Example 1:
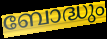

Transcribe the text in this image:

ബോദ്ധും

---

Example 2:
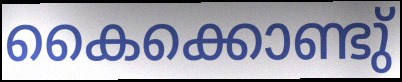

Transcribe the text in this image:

കൈക്കൊണ്ടു്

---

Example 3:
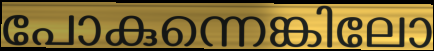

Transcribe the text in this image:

പോകുന്നെങ്കിലോ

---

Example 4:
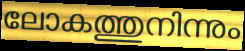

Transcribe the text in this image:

ലോകത്തുനിന്നും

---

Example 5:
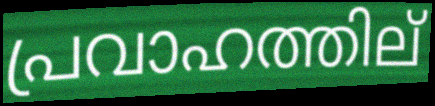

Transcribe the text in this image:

പ്രവാഹത്തില്